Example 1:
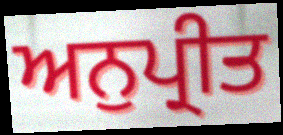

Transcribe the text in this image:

ਅਨੁਪ੍ਰੀਤ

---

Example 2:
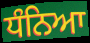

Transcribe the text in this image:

ਧੰਨਿਆ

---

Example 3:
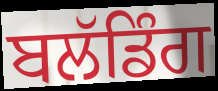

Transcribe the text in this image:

ਬਲੱਡਿੰਗ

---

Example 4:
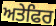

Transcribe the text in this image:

ਅਤੇਫਿਰ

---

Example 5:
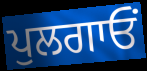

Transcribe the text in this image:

ਪੁਲਗਾਓਂ